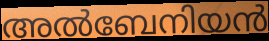
അൽബേനിയൻ